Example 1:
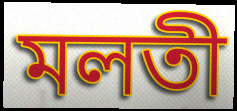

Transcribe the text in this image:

মলতী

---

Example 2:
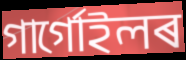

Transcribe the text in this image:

গাৰ্গোইলৰ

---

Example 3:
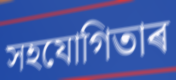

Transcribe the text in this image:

সহযোগিতাৰ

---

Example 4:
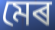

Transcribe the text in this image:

মেৰ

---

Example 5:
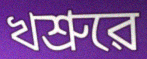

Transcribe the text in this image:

খশ্ৰুৱে